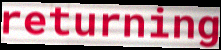
returning